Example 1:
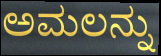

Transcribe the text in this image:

ಅಮಲನ್ನು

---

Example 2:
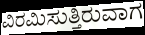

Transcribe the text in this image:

ವಿರಮಿಸುತ್ತಿರುವಾಗ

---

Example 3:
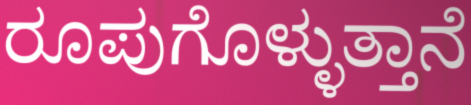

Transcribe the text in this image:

ರೂಪುಗೊಳ್ಳುತ್ತಾನೆ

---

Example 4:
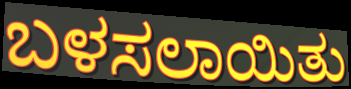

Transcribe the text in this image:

ಬಳಸಲಾಯಿತು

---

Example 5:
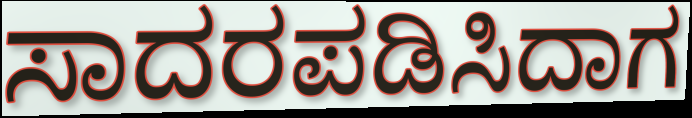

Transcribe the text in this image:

ಸಾದರಪಡಿಸಿದಾಗ